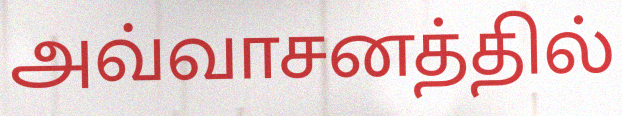
அவ்வாசனத்தில்